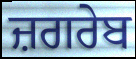
ਜ਼ਗਰੇਬ